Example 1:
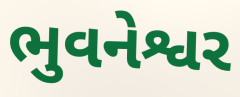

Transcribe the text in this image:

ભુવનેશ્વર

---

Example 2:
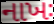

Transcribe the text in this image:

નાખઃ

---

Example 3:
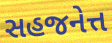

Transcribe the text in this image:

સહજનેત્ત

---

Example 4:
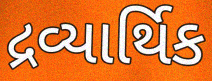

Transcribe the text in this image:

દ્રવ્યાર્થિક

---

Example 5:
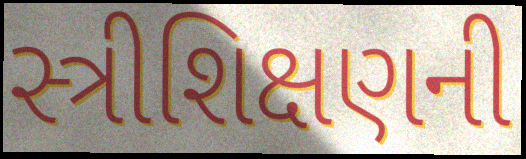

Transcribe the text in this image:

સ્ત્રીશિક્ષણની